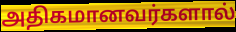
அதிகமானவர்களால்